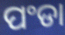
ପଂଡା